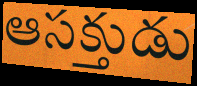
ఆసక్తుడు